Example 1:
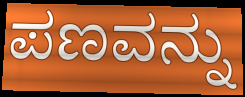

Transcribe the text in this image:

ಪಣವನ್ನು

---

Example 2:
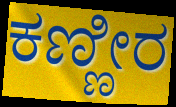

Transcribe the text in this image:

ಕಣ್ಣೀರ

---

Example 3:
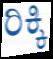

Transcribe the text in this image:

ರಿಕ್ಕಿ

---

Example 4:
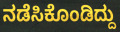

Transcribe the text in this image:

ನಡೆಸಿಕೊಂಡಿದ್ದು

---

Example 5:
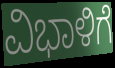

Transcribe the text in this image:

ವಿಭಾಳಿಗೆ